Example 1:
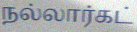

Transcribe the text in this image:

நல்லார்கட்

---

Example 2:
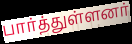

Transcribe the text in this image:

பார்த்துள்ளனர்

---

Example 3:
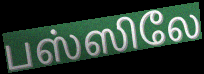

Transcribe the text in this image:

பஸ்ஸிலே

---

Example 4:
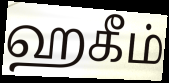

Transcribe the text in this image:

ஹகீம்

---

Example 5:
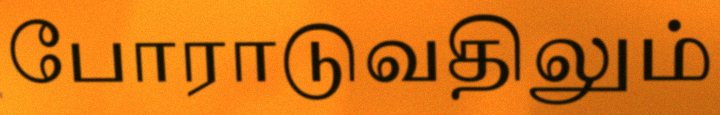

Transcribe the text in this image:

போராடுவதிலும்